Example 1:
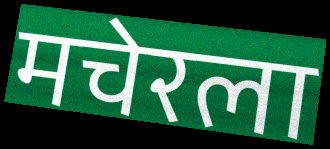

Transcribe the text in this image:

मचेरला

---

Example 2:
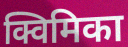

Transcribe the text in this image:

क्विमिका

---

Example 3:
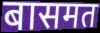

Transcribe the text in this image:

बासमत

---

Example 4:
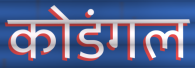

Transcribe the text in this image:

कोडंगल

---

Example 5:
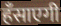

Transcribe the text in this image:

हँसाएगी